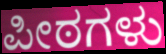
ಪೀಠಗಳು